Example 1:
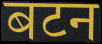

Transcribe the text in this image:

बटन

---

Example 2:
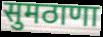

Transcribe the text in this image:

सुमठाणा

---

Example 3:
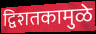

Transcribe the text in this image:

द्विशतकामुळे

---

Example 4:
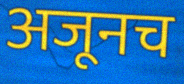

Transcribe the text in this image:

अजूनच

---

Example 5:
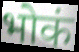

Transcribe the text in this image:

भोकं